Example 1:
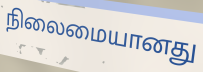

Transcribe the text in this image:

நிலைமையானது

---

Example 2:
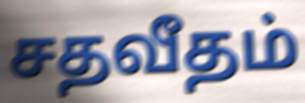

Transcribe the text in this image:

சதவீதம்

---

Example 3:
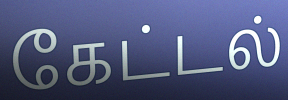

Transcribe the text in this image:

கேட்டல்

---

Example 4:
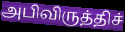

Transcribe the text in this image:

அபிவிருத்திச்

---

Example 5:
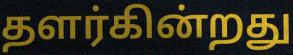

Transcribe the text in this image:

தளர்கின்றது